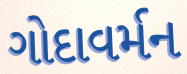
ગોદાવર્મન